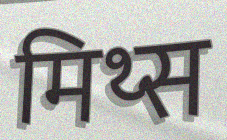
मिथ्स